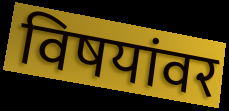
विषयांवर